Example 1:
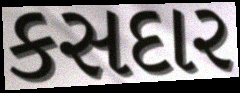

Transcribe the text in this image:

કસદાર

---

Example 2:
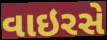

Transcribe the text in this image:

વાઇરસે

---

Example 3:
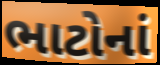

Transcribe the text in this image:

ભાટોનાં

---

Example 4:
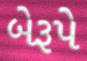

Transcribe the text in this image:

બેરૂપે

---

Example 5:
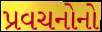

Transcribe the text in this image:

પ્રવચનોનો